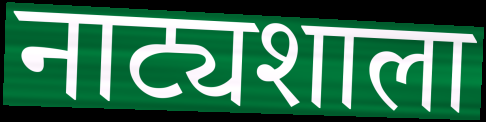
नाट्यशाला